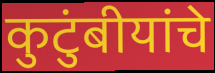
कुटुंबीयांचे